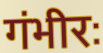
गंभीरः